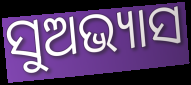
ସୁଅଭ୍ୟାସ